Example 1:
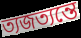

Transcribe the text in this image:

ত্যজত্যন্তে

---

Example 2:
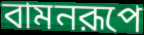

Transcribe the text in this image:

বামনরূপে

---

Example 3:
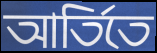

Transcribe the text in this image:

আর্তিতে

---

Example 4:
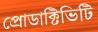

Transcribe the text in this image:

প্রোডাক্টিভিটি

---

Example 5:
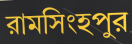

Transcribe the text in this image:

রামসিংহপুর